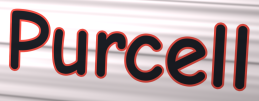
Purcell